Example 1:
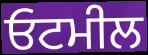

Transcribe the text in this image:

ਓਟਮੀਲ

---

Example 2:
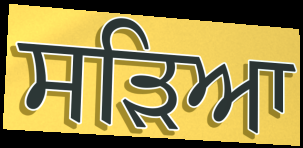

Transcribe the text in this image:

ਸੜਿਆ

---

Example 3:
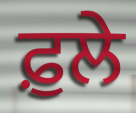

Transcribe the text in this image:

ਫ਼ੁਲੇ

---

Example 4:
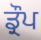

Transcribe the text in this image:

ਡ੍ਰੌਪ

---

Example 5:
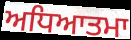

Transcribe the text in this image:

ਅਧਿਆਤਮਾ